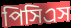
পিসিএস